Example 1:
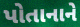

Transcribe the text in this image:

પોતાનાને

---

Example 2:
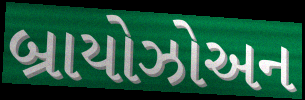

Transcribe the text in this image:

બ્રાયોઝોઅન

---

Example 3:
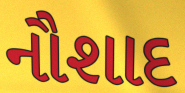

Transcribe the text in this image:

નૌશાદ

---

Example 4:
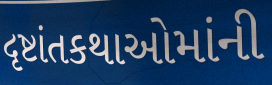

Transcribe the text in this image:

દૃષ્ટાંતકથાઓમાંની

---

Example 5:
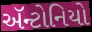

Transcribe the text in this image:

ઍન્ટોનિયો